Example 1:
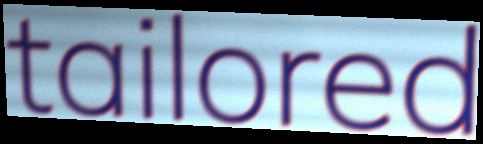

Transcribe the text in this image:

tailored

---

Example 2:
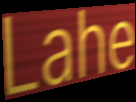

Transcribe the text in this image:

Lahe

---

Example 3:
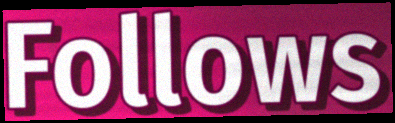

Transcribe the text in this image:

Follows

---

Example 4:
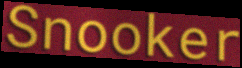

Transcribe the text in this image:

Snooker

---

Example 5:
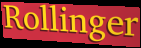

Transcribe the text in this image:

Rollinger